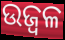
ଉଜ୍ବଳ